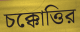
চক্কোত্তির